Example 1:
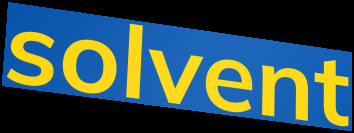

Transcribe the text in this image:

solvent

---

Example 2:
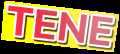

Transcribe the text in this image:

TENE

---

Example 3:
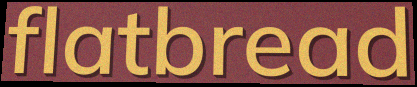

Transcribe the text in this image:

flatbread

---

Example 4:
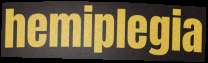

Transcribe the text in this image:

hemiplegia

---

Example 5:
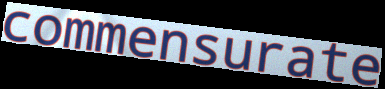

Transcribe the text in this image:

commensurate